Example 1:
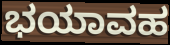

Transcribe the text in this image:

ಭಯಾವಹ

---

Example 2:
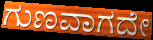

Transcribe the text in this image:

ಗುಣವಾಗದೇ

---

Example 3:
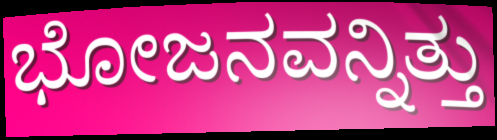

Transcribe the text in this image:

ಭೋಜನವನ್ನಿತ್ತು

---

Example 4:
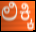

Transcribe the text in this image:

ಲಿಕ್ಕಿ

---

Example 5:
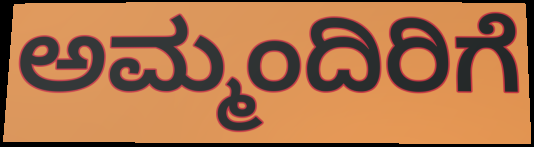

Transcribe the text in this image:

ಅಮ್ಮಂದಿರಿಗೆ